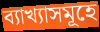
ব্যাখ্যাসমূহে